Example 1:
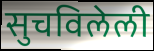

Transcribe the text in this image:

सुचविलेली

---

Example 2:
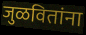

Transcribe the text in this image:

जुळवितांना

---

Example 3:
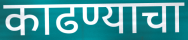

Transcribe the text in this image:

काढण्याचा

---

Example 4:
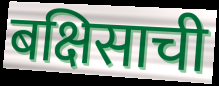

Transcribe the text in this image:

बक्षिसाची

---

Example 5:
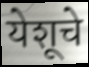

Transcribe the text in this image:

येशूचे